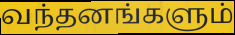
வந்தனங்களும்